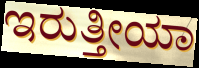
ಇರುತ್ತೀಯಾ